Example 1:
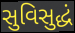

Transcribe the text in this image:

સુવિસુદ્ધં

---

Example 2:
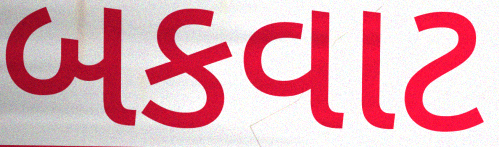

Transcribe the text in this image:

બકવાટ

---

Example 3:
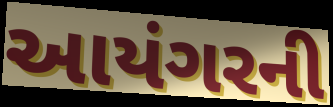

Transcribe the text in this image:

આયંગરની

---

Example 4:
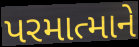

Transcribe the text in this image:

પરમાત્માને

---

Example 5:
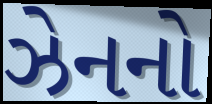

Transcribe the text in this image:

ઝેનનો